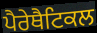
ਪੈਰੇਥੈਟਿਕਲ